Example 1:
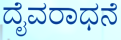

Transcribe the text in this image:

ದೈವರಾಧನೆ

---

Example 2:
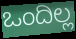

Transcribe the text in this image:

ಒಂದಿಲ್ಲ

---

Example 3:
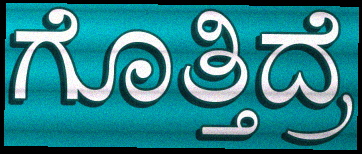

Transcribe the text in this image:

ಗೊತ್ತಿದ್ರೆ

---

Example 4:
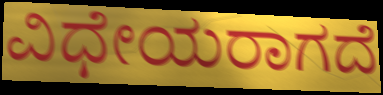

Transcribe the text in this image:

ವಿಧೇಯರಾಗದೆ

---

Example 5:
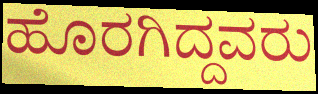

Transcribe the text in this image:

ಹೊರಗಿದ್ದವರು